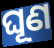
ଘୂଣ